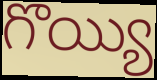
గొయ్యి